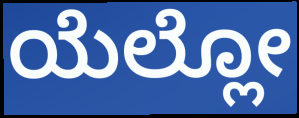
ಯೆಲ್ಲೋ